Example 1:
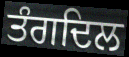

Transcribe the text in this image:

ਤੰਗਦਿਲ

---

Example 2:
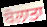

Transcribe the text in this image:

ਬੋਲਾਤਾ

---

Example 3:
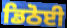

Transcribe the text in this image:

ਡਿਠੋਈ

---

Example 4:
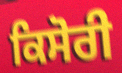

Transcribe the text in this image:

ਕਿਸੋਰੀ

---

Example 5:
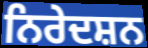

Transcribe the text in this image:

ਨਿਰੇਦਸ਼ਨ